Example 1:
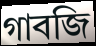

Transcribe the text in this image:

গাবজি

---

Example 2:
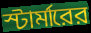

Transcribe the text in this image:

স্টার্মারের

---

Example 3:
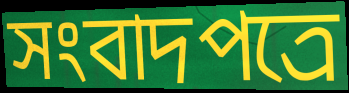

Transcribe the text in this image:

সংবাদপত্রে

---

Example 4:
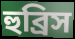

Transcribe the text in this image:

হুব্রিস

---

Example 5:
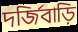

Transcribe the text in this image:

দর্জিবাড়ি